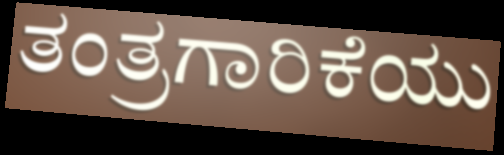
ತಂತ್ರಗಾರಿಕೆಯು